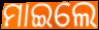
ମାଇଲେ